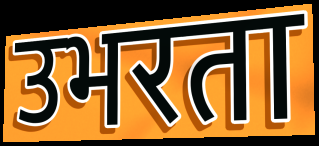
उभरता